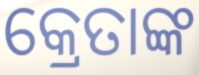
କ୍ରେତାଙ୍କ